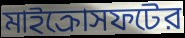
মাইক্রোসফটের